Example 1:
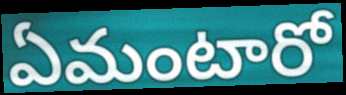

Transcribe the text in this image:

ఏమంటారో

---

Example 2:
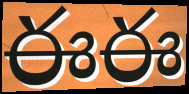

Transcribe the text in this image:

ఈఈ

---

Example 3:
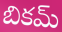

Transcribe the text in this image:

బికమ్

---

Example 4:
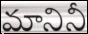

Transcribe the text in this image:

మానినీ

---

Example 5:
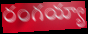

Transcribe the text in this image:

రంగయ్యా